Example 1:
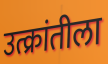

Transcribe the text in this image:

उत्क्रांतीला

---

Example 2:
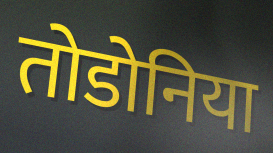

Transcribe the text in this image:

तोडोनिया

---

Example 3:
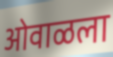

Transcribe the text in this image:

ओवाळला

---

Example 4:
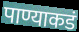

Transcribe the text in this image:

पाण्याकडं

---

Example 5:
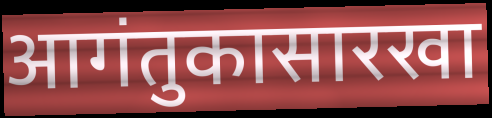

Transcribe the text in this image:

आगंतुकासारखा